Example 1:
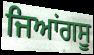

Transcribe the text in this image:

ਜਿਆਂਗਸੂ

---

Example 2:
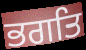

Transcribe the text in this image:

ਭਗਤਿ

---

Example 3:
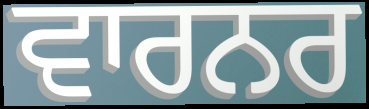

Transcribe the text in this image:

ਵਾਰਨਰ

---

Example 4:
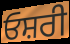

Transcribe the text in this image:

ਓਸ਼ਰੀ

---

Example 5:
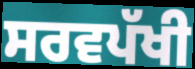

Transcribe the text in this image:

ਸਰਵਪੱਖੀ